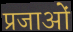
प्रजाओं